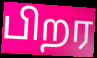
பிறர